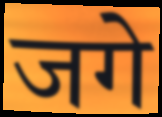
जगे